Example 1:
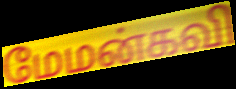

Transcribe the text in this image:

மேமன்கவி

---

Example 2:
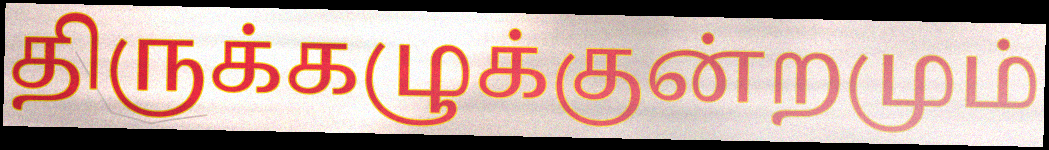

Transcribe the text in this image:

திருக்கழுக்குன்றமும்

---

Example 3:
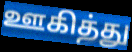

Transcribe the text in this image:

ஊகித்து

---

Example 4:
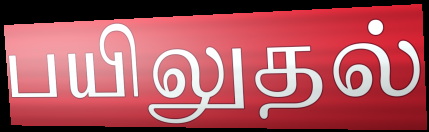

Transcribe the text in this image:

பயிலுதல்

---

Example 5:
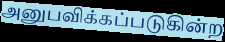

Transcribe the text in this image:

அனுபவிக்கப்படுகின்ற